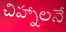
చిహ్నాలనే